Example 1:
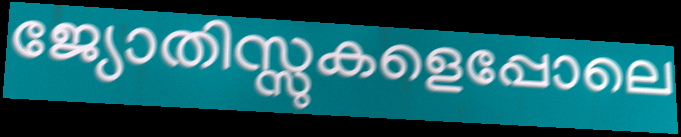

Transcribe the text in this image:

ജ്യോതിസ്സുകളെപ്പോലെ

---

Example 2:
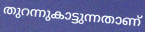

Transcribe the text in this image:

തുറന്നുകാട്ടുന്നതാണ്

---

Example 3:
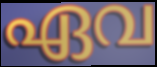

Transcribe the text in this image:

ഏവ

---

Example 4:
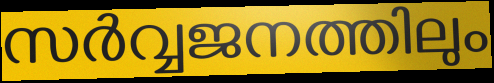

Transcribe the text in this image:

സർവ്വജനത്തിലും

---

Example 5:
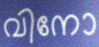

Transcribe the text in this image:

വിനോ